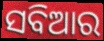
ସବିଆର